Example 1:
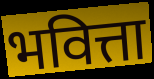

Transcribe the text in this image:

भवित्ता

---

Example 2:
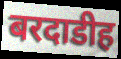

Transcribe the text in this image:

बरदाडीह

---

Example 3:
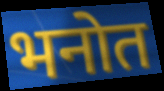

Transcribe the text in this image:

भनोत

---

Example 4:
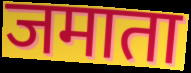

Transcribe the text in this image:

जमाता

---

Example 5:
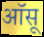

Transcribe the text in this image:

ऑसू